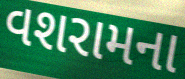
વશરામના